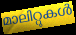
മാലിറ്റുകൾ